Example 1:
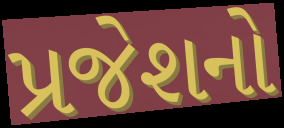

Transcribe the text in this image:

પ્રજેશનો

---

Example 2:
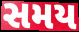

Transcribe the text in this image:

સમય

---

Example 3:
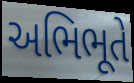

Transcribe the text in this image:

અભિભૂતે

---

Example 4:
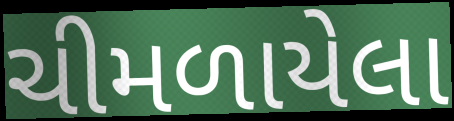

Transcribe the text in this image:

ચીમળાયેલા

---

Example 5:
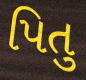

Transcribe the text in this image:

પિતુ